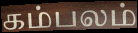
கம்பலம்